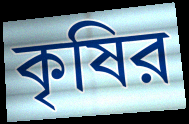
কৃষির